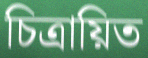
চিত্রায়িত